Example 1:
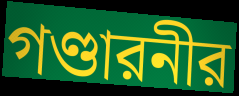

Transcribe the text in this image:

গণ্ডারনীর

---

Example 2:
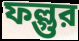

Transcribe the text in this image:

ফল্গুর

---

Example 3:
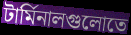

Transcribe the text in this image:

টার্মিনালগুলোতে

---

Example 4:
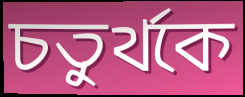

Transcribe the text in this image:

চতুর্থকে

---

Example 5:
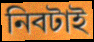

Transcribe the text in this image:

নিবটাই